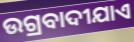
ଉଗ୍ରବାଦୀଯାଏ